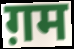
ग़म